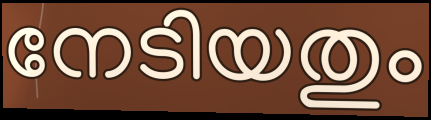
നേടിയതും